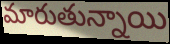
మారుతున్నాయి